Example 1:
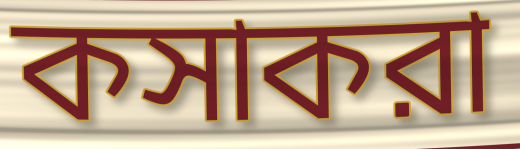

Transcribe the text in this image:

কসাকরা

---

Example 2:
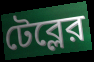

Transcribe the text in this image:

টেব্লের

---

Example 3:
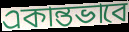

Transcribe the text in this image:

একান্তভাবে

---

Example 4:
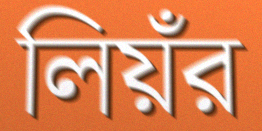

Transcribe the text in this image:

লিয়ঁর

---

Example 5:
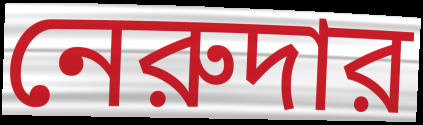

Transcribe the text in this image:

নেরুদার